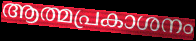
ആത്മപ്രകാശനം